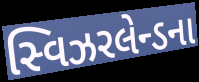
સ્વિઝરલેન્ડના